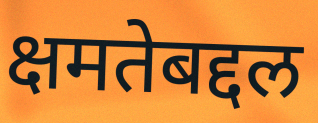
क्षमतेबद्दल